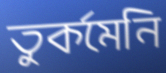
তুর্কমেনি